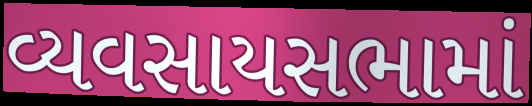
વ્યવસાયસભામાં